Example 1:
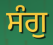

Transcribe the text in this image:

ਸੰਗੁ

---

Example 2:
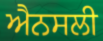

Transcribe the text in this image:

ਐਨਸਲੀ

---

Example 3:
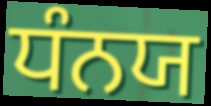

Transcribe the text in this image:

ਧੰਨਯ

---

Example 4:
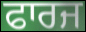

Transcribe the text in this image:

ਫਾਰਜ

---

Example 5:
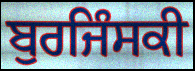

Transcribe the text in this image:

ਬੁਰਜਿੰਸਕੀ